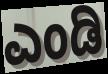
ಎಂಡಿ